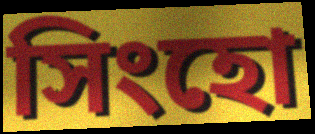
সিংহো